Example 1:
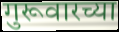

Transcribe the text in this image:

गुरूवारच्या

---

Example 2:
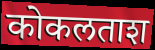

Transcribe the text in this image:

कोकलताश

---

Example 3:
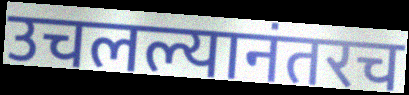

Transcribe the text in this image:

उचलल्यानंतरच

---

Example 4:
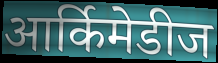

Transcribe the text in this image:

आर्किमेडीज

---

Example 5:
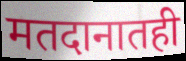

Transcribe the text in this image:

मतदानातही